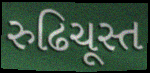
રુઢિચૂસ્ત